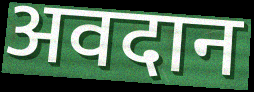
अवदान